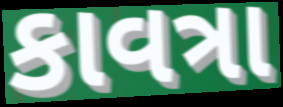
કાવત્રા